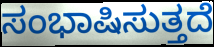
ಸಂಭಾಷಿಸುತ್ತದೆ